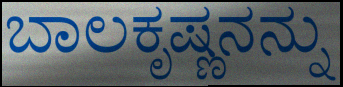
ಬಾಲಕೃಷ್ಣನನ್ನು